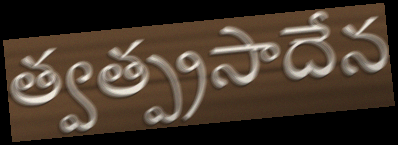
త్వత్ప్రసాదేన